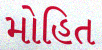
મોહિત